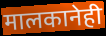
मालकानेही